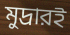
মুদ্রারই